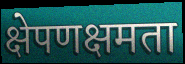
क्षेपणक्षमता